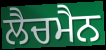
ਲੈਚਮੈਨ